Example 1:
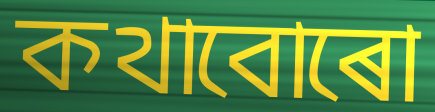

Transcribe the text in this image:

কথাবোৰো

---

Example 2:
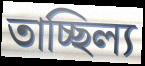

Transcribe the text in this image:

তাচ্ছিল্য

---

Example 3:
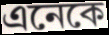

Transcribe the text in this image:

এনেকে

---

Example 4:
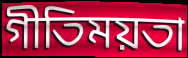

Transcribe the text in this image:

গীতিময়তা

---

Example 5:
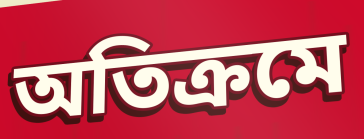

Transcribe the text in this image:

অতিক্ৰমে